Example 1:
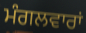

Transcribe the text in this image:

ਮੰਗਲਵਾਰਾਂ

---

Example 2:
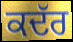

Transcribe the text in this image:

ਕਦੱਰ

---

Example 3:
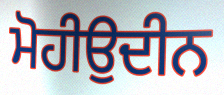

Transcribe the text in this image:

ਮੋਹੀਉਦੀਨ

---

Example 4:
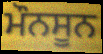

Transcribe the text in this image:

ਮੌਨਸੂਨ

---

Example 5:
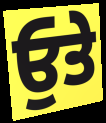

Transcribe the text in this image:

ਓੁਤੇ